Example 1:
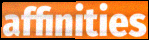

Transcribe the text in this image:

affinities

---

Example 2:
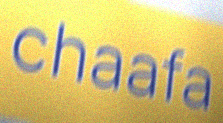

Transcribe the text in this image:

chaafa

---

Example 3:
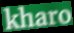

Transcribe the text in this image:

kharo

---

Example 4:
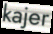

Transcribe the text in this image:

kajer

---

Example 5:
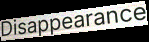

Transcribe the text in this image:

Disappearance